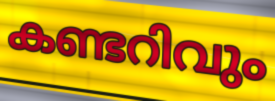
കണ്ടറിവും